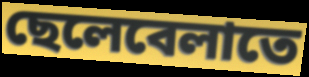
ছেলেবেলাতে